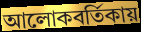
আলোকবর্তিকায়